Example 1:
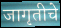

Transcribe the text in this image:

जागृतीचे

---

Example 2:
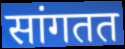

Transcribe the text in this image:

सांगतत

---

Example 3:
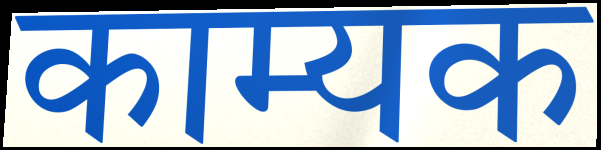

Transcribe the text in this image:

काम्यक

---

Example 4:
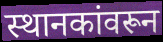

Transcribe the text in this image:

स्थानकांवरून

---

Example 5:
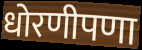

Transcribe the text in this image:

धोरणीपणा